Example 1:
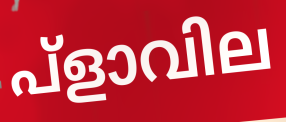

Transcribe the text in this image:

പ്ളാവില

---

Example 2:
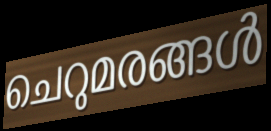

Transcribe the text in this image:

ചെറുമരങ്ങൾ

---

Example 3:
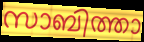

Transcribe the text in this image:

സാബിത്താ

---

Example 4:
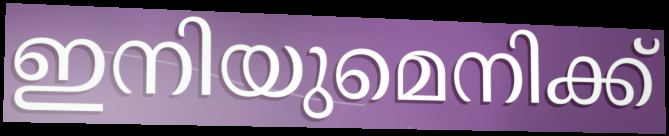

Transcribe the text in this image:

ഇനിയുമെനിക്ക്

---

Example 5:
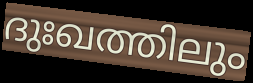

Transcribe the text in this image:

ദുഃഖത്തിലും